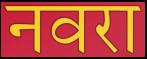
नवरा